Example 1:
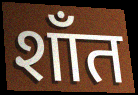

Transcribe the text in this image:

शाँत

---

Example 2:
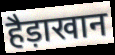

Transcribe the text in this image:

हैड़ाखान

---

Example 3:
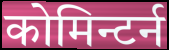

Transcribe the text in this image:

कोमिन्टर्न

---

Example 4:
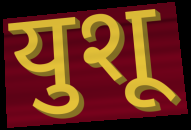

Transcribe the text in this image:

युशू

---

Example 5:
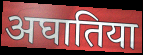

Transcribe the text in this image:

अघातिया